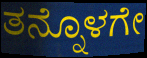
ತನ್ನೊಳಗೇ